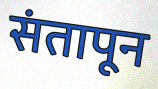
संतापून